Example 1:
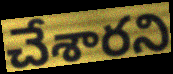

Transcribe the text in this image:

చేశారని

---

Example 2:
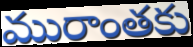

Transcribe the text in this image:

మురాంతకు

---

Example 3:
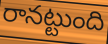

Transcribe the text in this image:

రానట్టుంది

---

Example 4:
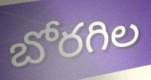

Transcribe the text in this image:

బోరగిల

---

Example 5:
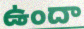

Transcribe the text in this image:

ఉందా